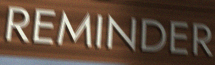
REMINDER